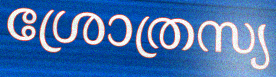
ശ്രോത്രസ്യ